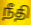
நீதி